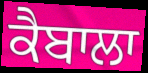
ਕੈਬਾਲਾ